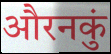
औरनकुं